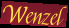
Wenzel